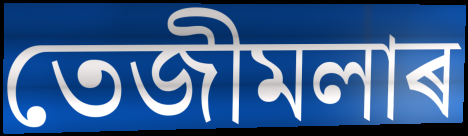
তেজীমলাৰ